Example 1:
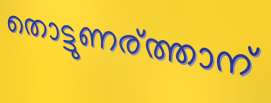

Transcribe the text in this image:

തൊട്ടുണര്ത്താന്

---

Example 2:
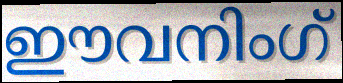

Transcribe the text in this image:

ഈവനിംഗ്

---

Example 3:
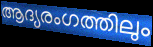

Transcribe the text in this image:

ആദ്യരംഗത്തിലും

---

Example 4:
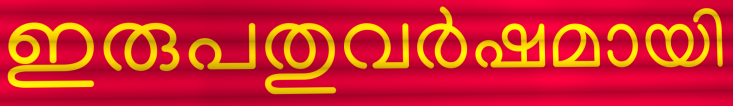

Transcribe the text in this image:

ഇരുപതുവർഷമായി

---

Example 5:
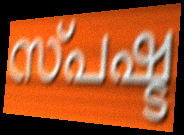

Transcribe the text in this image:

സ്‌പഷ്ട